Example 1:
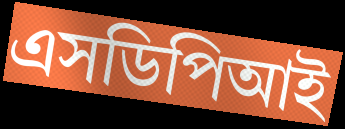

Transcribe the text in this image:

এসডিপিআই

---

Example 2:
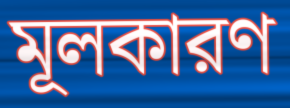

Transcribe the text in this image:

মূলকারণ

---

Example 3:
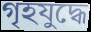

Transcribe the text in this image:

গৃহযুদ্ধে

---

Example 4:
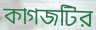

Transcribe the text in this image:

কাগজটির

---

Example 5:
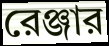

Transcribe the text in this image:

রেঞ্জার